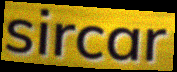
sircar